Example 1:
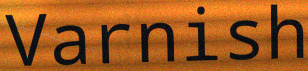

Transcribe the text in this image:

Varnish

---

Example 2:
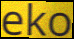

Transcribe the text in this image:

eko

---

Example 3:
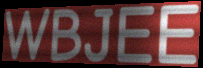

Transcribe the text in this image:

WBJEE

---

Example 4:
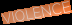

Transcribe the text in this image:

VIOLENCE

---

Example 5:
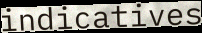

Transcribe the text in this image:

indicatives